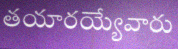
తయారయ్యేవారు